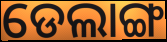
ଡେଲାଙ୍ଗ